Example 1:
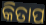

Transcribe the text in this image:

କିତାପ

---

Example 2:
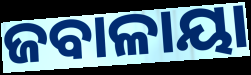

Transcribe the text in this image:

ଜବାଳାୟା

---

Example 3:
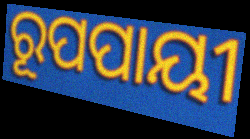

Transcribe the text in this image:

ରୂପପାୟୀ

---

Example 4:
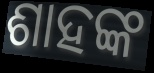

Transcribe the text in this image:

ଶାହଙ୍କ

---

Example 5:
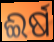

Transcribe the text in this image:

ଈର୍ଷ